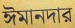
ঈমানদার